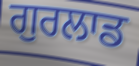
ਗੁਰਲਾਡ